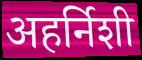
अहर्निशी